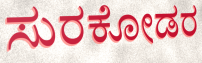
ಸುರಕೋಡರ